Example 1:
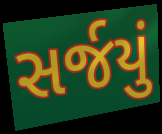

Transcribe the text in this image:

સર્જયું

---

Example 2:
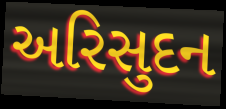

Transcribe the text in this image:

અરિસુદન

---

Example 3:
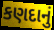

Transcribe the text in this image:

કણદાનું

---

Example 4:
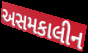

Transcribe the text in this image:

અસમકાલીન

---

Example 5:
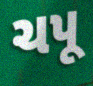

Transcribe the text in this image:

ચપૂ